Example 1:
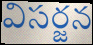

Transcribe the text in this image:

విసర్జన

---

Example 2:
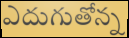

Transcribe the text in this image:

ఎదుగుతోన్న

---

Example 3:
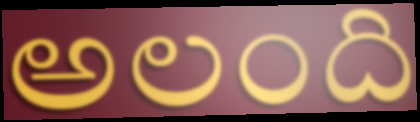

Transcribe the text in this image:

అలంది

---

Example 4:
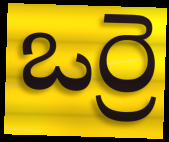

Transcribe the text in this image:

ఒర్రె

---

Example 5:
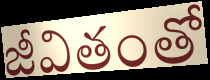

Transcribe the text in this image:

జీవితంతో